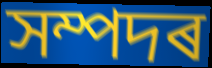
সম্পদৰ